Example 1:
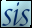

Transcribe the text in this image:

sis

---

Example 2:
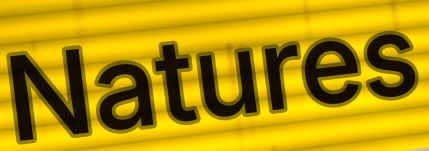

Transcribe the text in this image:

Natures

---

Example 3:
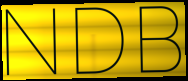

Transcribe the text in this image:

NDB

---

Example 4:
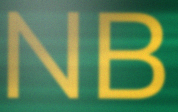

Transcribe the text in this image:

NB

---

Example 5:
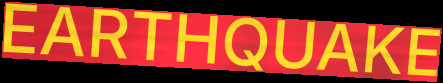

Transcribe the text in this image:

EARTHQUAKE